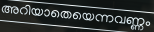
അറിയാതെയെന്നവണ്ണം